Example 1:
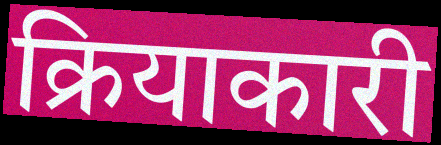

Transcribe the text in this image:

क्रियाकारी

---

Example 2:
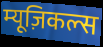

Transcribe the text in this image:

म्यूज़िकल्स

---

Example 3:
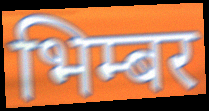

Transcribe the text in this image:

भिम्बर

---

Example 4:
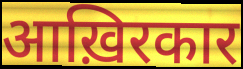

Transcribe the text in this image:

आख़िरकार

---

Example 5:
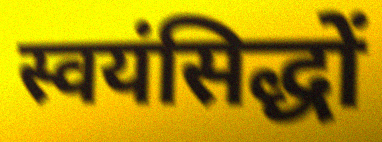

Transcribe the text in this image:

स्वयंसिद्धों